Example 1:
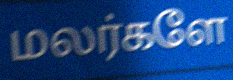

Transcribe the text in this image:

மலர்களே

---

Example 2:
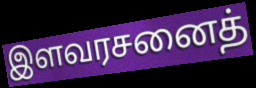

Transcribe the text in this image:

இளவரசனைத்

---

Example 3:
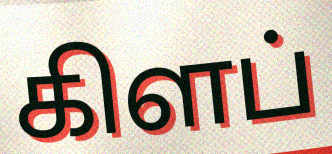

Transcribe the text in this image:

கிளப்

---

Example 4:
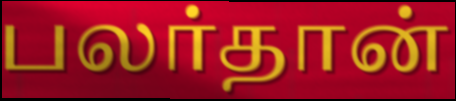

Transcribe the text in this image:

பலர்தான்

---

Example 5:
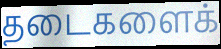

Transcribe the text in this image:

தடைகளைக்